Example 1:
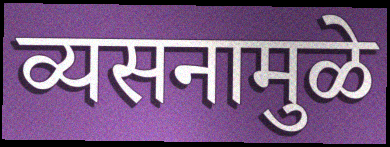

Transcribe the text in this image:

व्यसनामुळे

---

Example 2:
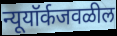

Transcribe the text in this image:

न्यूयॉर्कजवळील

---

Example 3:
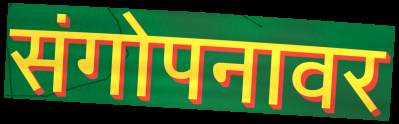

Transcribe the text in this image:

संगोपनावर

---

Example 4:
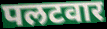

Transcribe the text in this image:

पलटवार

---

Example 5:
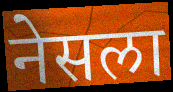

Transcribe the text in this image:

नेसला